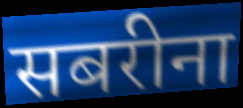
सबरीना